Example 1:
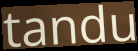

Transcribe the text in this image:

tandu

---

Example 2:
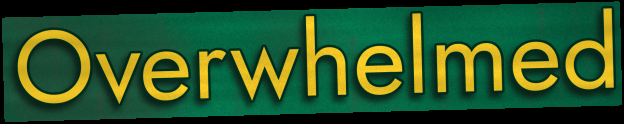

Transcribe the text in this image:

Overwhelmed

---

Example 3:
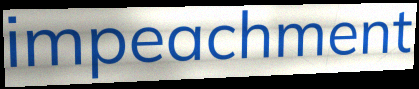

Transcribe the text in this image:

impeachment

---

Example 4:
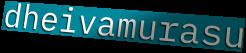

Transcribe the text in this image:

dheivamurasu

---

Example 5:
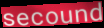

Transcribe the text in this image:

secound